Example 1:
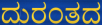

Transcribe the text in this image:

ದುರಂತದ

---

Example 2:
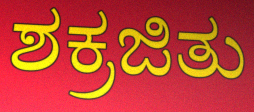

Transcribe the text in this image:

ಶಕ್ರಜಿತು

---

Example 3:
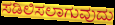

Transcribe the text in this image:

ಸಡಿಲಿಸಲಾಗುವುದು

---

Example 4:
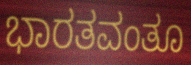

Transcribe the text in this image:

ಭಾರತವಂತೂ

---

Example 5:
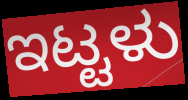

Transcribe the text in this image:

ಇಟ್ಟಳು